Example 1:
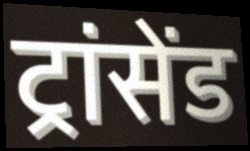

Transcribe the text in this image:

ट्रांसेंड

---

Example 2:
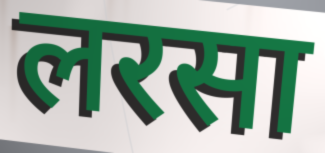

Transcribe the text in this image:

लरसा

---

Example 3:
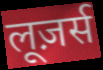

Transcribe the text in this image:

लूज़र्स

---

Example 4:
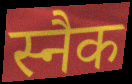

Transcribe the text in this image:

स्नैक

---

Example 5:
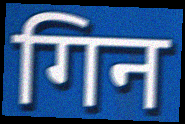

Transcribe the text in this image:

गिन